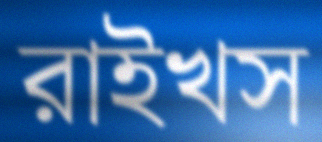
রাইখস